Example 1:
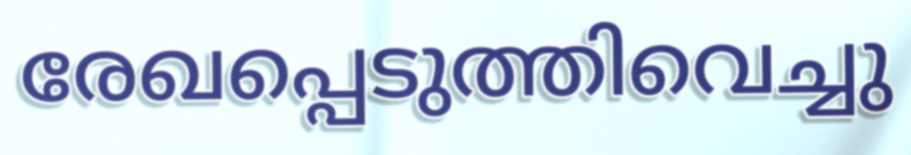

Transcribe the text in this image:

രേഖപ്പെടുത്തിവെച്ചു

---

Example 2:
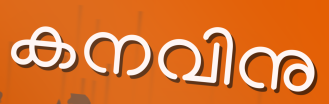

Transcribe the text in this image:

കനവിനു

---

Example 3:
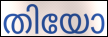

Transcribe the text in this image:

തിയോ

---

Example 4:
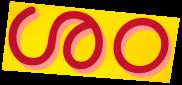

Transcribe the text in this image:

ശഠ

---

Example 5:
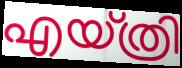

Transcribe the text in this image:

എയ്ത്രി